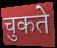
चुकते